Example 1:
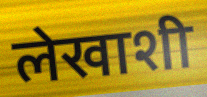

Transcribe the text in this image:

लेखाशी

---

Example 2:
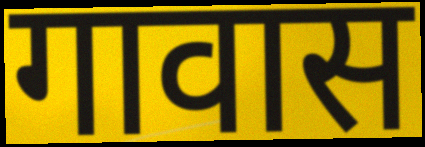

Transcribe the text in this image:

गावास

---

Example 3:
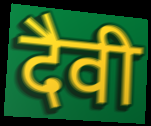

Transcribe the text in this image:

दैवी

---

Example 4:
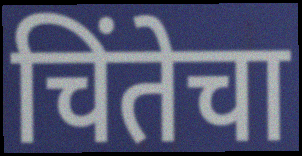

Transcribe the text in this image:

चिंतेचा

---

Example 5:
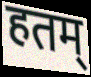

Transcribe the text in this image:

हतम्